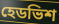
হেডভিশ